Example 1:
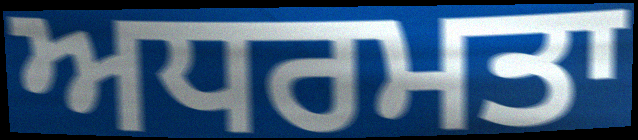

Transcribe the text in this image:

ਅਧਰਮਤਾ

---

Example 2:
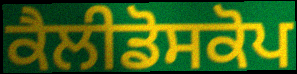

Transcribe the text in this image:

ਕੈਲੀਡੋਸਕੋਪ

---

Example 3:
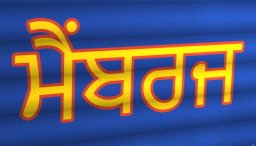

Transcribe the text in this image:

ਮੈਂਬਰਜ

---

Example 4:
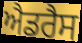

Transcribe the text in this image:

ਐਡਰੈਸ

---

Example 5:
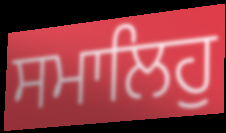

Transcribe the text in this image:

ਸਮਾਲਿਹੁ